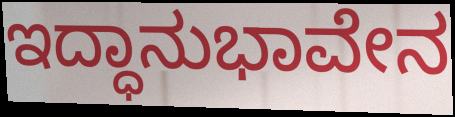
ಇದ್ಧಾನುಭಾವೇನ